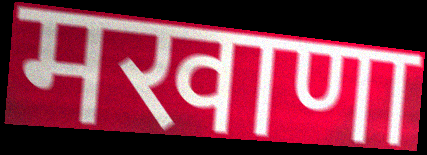
मखाणा